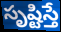
సృష్టిస్తే